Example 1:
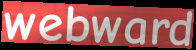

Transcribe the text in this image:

webward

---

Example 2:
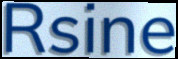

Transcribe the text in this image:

Rsine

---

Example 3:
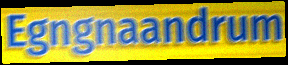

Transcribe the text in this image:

Egngnaandrum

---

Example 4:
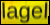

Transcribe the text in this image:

lagel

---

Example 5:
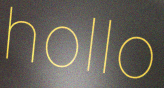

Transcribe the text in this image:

hollo